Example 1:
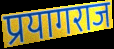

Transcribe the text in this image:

प्रयागराज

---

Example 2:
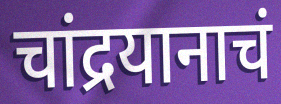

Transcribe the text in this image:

चांद्रयानाचं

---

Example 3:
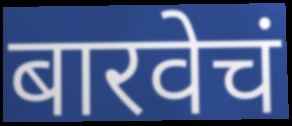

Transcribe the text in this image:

बारवेचं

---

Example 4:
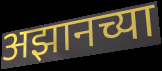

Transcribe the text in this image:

अझानच्या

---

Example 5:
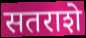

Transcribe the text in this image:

सतराशे